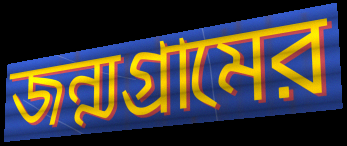
জন্মগ্রামের